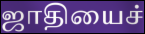
ஜாதியைச்